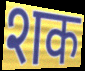
शक